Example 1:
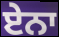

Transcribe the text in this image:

ਏਨਾ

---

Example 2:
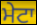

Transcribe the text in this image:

ਮੇਟਾ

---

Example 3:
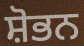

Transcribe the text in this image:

ਸ਼ੋਭਨ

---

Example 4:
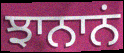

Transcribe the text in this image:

ਝਾਨਾਨਂ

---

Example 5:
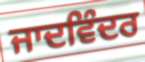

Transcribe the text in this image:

ਜਾਦਵਿੰਦਰ